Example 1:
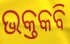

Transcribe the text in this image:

ଭକ୍ତକବି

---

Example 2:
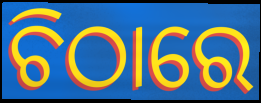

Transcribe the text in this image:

ଚିଠାରେ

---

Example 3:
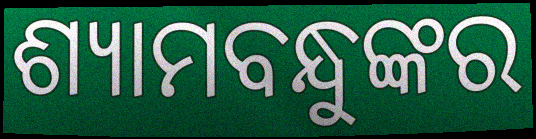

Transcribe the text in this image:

ଶ୍ୟାମବନ୍ଧୁଙ୍କର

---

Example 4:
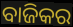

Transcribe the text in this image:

ବାଜିକର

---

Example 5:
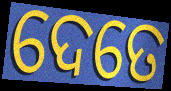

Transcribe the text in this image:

ଦେତେ